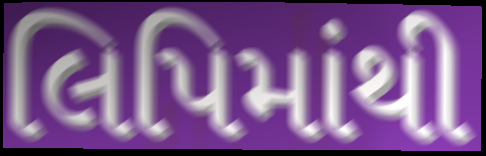
લિપિમાંથી